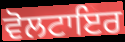
ਵੋਲਟਾਇਰ